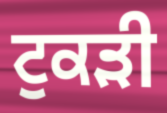
ਟੁਕਡ਼ੀ